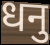
धनु